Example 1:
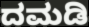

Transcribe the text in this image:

ದಮಡಿ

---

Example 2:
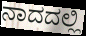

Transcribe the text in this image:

ನಾದದಲ್ಲಿ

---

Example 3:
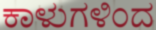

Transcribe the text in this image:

ಕಾಳುಗಳಿಂದ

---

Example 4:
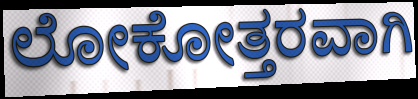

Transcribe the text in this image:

ಲೋಕೋತ್ತರವಾಗಿ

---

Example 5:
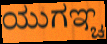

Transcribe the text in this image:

ಯುಗಞ್ಚ